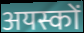
अयस्कों